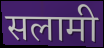
सलामी